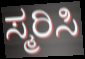
ಸ್ಮರಿಸಿ